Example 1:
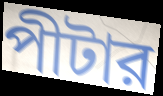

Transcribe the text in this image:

পীটার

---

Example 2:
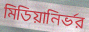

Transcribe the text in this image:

মিডিয়ানির্ভর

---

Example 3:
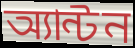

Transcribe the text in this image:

অ্যান্টন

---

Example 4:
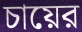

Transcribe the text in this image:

চায়ের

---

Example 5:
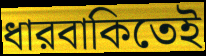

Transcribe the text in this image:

ধারবাকিতেই